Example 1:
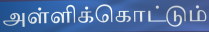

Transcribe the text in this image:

அள்ளிக்கொட்டும்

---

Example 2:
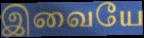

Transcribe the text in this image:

இவையே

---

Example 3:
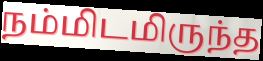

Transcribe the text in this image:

நம்மிடமிருந்த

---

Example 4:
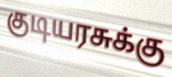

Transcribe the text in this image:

குடியரசுக்கு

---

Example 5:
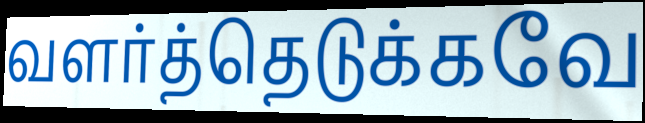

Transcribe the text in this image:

வளர்த்தெடுக்கவே